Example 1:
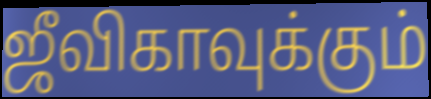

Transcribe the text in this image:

ஜீவிகாவுக்கும்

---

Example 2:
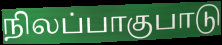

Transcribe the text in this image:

நிலப்பாகுபாடு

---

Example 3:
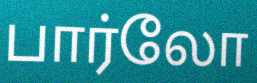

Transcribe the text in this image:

பார்லோ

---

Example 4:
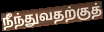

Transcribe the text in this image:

நீந்துவதற்குத்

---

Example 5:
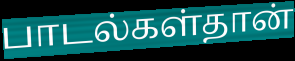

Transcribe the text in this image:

பாடல்கள்தான்